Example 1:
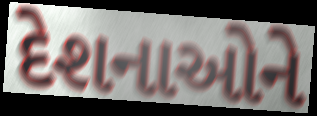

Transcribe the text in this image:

દેશનાઓને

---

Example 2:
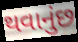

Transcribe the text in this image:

થવાનુંછ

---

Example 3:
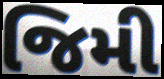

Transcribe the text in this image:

જિમી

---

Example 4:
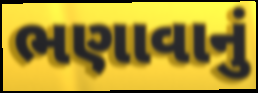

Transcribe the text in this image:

ભણાવાનું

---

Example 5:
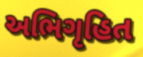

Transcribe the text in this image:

અભિગૃહિત